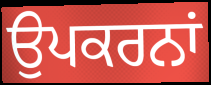
ਉਪਕਰਨਾਂ